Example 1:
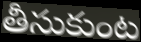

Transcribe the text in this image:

తీసుకుంట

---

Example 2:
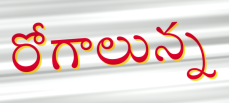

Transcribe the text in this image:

రోగాలున్న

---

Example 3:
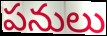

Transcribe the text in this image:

పనులు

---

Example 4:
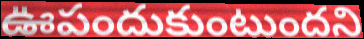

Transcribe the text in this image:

ఊపందుకుంటుందని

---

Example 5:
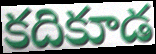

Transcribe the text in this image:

కదికూడ